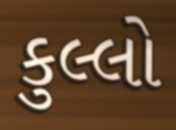
કુલ્લો